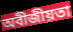
অবীজীয়তা